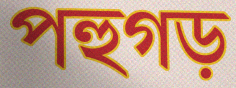
পহুগড়